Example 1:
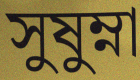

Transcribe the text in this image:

সুষুম্না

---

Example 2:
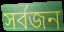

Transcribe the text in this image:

সর্বজন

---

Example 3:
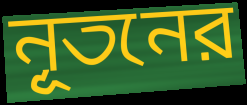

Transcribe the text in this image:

নূতনের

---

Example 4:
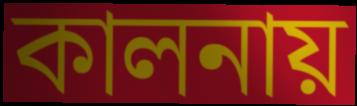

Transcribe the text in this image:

কালনায়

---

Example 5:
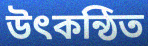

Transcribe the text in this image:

উৎকন্ঠিত